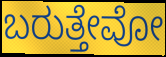
ಬರುತ್ತೇವೋ